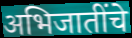
अभिजातींचे